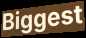
Biggest